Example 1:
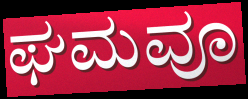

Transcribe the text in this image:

ಘಮವೂ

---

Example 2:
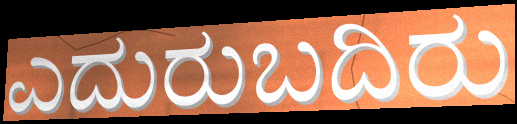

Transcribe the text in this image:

ಎದುರುಬದಿರು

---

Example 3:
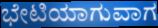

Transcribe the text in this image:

ಭೇಟಿಯಾಗುವಾಗ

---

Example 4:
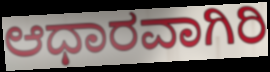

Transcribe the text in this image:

ಆಧಾರವಾಗಿರಿ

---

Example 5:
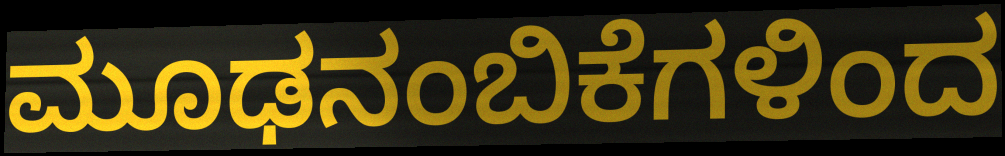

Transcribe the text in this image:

ಮೂಢನಂಬಿಕೆಗಳಿಂದ